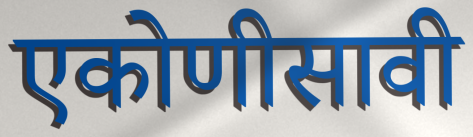
एकोणीसावी